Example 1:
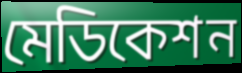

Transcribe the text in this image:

মেডিকেশন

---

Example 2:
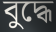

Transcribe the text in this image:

বুদ্ধে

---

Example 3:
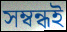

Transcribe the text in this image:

সম্বন্ধই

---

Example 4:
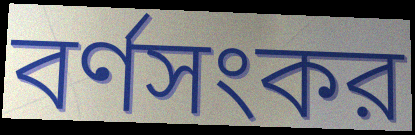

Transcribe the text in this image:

বর্ণসংকর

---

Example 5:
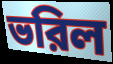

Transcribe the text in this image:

ভরিল